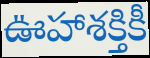
ఊహాశక్తికీ